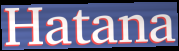
Hatana